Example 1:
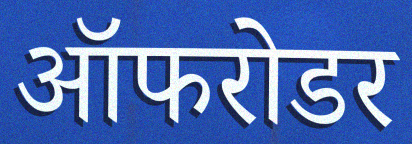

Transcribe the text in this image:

ऑफरोडर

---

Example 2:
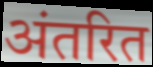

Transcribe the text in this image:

अंतरित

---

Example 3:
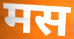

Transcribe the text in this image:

मस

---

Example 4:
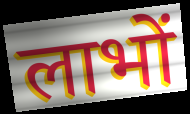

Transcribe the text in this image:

लाभों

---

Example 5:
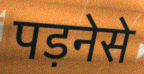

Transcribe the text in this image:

पड़नेसे